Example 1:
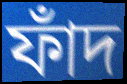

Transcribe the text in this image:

ফাঁদ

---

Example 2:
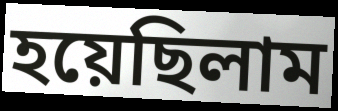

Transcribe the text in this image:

হয়েছিলাম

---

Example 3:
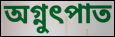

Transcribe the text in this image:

অগ্নুৎপাত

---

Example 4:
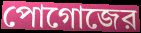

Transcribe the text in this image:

পোগোজের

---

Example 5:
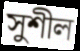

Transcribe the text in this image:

সুশীল